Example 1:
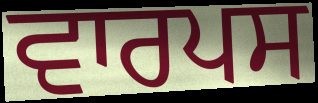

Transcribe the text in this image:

ਵਾਰਪਸ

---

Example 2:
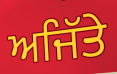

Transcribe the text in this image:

ਅਜਿੱਤੇ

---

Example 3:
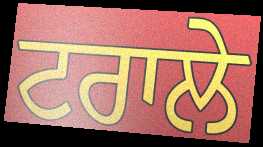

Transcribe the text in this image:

ਟਰਾਲੇ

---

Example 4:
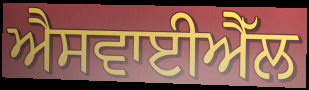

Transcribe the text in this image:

ਐਸਵਾਈਐੱਲ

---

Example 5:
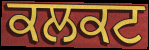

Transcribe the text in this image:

ਕਲਕਟ